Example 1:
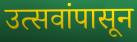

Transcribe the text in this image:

उत्सवांपासून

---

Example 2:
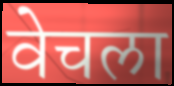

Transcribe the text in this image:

वेचला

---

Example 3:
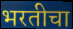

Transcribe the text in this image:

भरतीचा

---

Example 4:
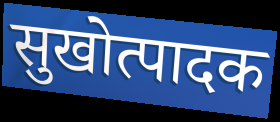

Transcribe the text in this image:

सुखोत्पादक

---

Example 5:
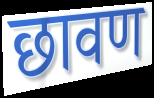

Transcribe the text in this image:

छावण